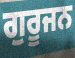
ਗੁਰੂਜਨ